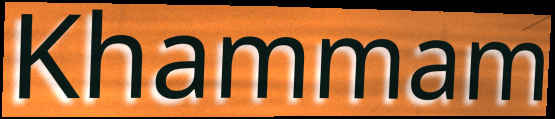
Khammam